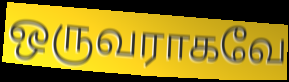
ஒருவராகவே